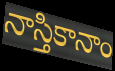
నాస్తికానాం